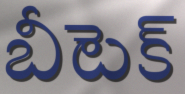
బీటెక్